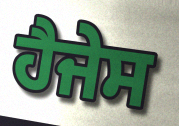
ਹੈਜੇਸ